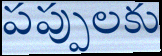
పప్పులకు